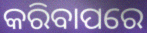
କରିବାପରେ